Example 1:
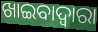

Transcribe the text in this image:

ଖାଇବାଦ୍ୱାରା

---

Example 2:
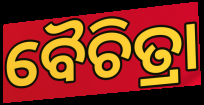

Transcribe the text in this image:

ବୈଚିତ୍ରା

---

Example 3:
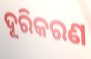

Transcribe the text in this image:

ଦୂରିକରଣ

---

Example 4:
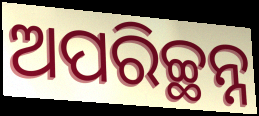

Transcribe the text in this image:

ଅପରିଚ୍ଛନ୍ନ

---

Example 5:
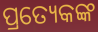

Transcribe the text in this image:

ପ୍ରତ୍ଯେକଙ୍କ